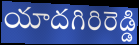
యాదగిరిరెడ్డి